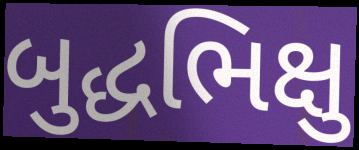
બુદ્ધભિક્ષુ